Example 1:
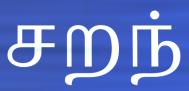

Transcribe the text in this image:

சறந்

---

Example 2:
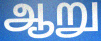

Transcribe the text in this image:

ஆறு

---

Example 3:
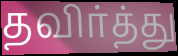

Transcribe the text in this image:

தவிர்த்து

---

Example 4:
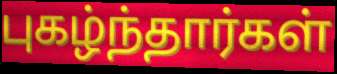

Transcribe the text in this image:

புகழ்ந்தார்கள்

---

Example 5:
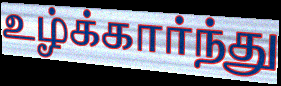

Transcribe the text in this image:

உழ்க்கார்ந்து